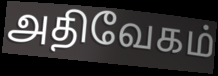
அதிவேகம்